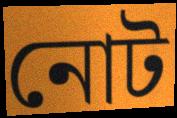
নোট